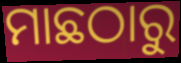
ମାଛଠାରୁ